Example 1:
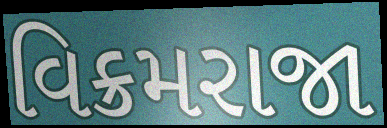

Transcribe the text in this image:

વિક્રમરાજા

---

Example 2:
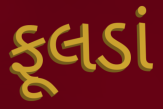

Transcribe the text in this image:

ફૂલડાં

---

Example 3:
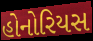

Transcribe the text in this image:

હોનોરિયસ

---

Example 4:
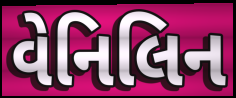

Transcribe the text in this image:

વેનિલિન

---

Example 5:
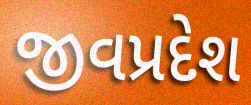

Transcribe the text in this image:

જીવપ્રદેશ